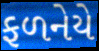
ફળનેયે